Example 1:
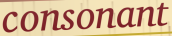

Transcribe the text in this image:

consonant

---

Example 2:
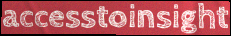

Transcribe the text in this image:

accesstoinsight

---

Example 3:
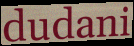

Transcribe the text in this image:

dudani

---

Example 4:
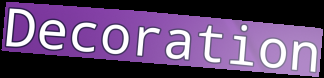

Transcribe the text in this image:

Decoration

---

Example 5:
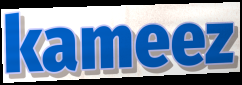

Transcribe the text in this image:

kameez